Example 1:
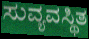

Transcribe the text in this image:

ಸುವ್ಯವಸ್ಥಿತ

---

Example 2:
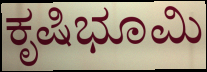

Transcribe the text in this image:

ಕೃಷಿಭೂಮಿ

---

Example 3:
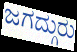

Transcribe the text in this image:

ಜಗದ್ಗುರು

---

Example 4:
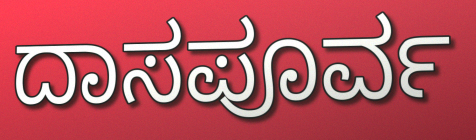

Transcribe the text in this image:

ದಾಸಪೂರ್ವ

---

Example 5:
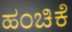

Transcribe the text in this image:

ಹಂಚಿಕೆ